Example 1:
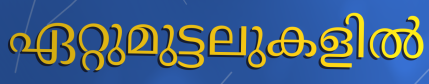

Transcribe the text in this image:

ഏറ്റുമുട്ടലുകളിൽ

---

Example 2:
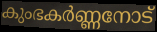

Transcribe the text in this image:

കുംഭകർണ്ണനോട്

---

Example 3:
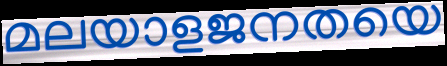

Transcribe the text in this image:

മലയാളജനതയെ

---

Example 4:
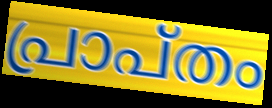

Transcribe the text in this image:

പ്രാപ്തം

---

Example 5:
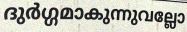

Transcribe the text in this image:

ദുർഗ്ഗമാകുന്നുവല്ലോ